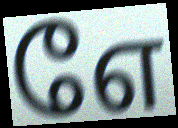
எே